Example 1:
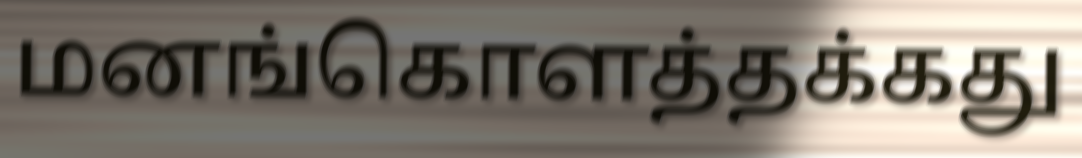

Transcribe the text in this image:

மனங்கொளத்தக்கது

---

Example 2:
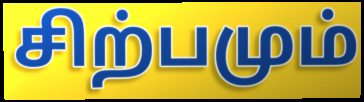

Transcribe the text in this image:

சிற்பமும்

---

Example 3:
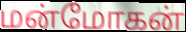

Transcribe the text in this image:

மன்மோகன்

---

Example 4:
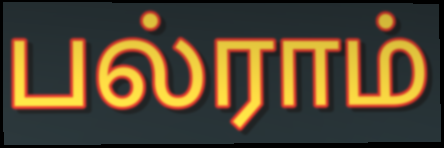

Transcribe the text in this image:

பல்ராம்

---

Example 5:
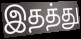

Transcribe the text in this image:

இதத்து